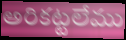
అరికట్టలేము